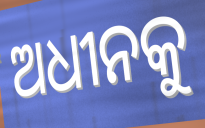
ଅଧୀନକୁ